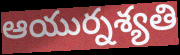
ఆయుర్నశ్యతి